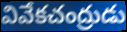
వివేకచంద్రుడు